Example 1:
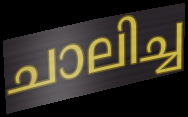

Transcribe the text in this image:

ചാലിച്ച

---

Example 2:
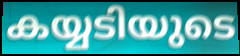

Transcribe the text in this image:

കയ്യടിയുടെ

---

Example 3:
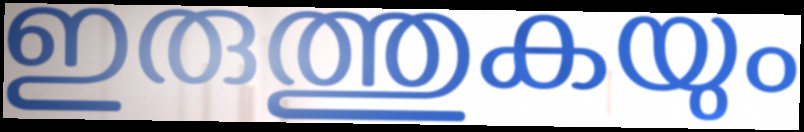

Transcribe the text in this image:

ഇരുത്തുകയും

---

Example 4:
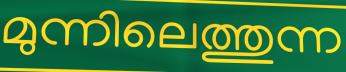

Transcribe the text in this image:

മുന്നിലെത്തുന്ന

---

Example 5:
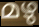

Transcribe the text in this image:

മഴു